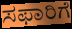
ಸಫಾರಿಗೆ